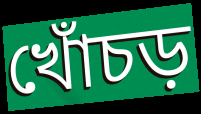
খোঁচড়